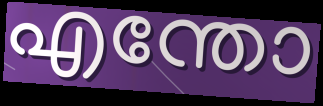
എന്തോ